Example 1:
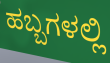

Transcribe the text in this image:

ಹಬ್ಬಗಳಲ್ಲಿ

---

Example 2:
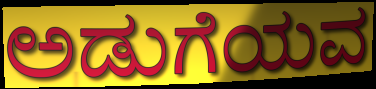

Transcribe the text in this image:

ಅಡುಗೆಯವ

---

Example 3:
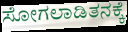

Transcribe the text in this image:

ಸೋಗಲಾಡಿತನಕ್ಕೆ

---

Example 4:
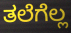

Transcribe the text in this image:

ತಲೆಗೆಲ್ಲ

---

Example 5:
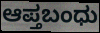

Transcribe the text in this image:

ಆಪ್ತಬಂಧು